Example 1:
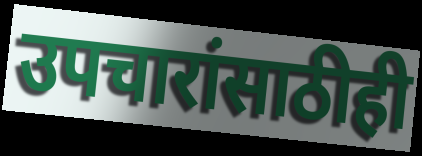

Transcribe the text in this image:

उपचारांसाठीही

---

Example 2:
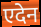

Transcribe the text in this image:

एदेन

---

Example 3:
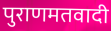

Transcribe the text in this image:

पुराणमतवादी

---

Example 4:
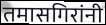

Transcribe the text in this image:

तमासगिरांनी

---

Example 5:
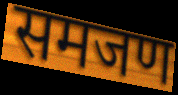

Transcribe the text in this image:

समजण